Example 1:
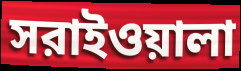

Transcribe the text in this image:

সরাইওয়ালা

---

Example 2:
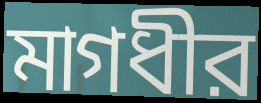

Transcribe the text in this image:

মাগধীর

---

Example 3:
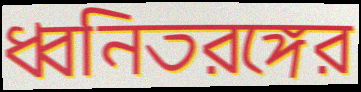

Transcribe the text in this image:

ধ্বনিতরঙ্গের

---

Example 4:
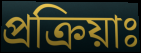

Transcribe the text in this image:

প্রক্রিয়াঃ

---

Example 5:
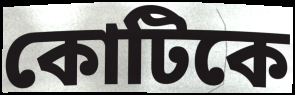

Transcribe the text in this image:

কোটিকে